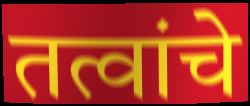
तत्वांचे